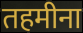
तहमीना